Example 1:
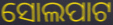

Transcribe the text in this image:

ସୋଲପାଟ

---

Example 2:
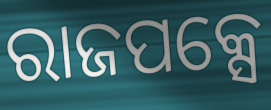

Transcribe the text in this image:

ରାଜପକ୍ସେ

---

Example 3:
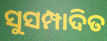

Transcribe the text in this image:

ସୁସମ୍ପାଦିତ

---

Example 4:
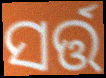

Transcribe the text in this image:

ସର୍ତ୍ତ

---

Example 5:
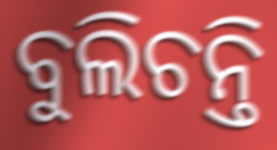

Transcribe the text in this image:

ବୁଲିଚନ୍ତି